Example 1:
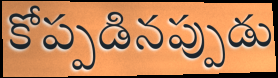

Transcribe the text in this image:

కోప్పడినప్పుడు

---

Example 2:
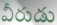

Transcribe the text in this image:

వీరుడు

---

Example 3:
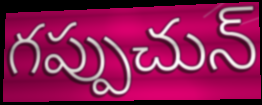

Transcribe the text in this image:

గప్పుచున్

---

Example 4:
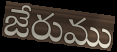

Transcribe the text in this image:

జేరుము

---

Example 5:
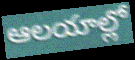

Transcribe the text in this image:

ఆలయాల్లో